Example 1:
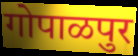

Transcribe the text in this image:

गोपाळपुर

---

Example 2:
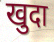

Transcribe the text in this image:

खुदा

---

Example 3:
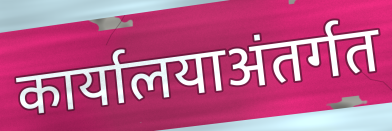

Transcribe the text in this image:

कार्यालयाअंतर्गत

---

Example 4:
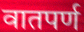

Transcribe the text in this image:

वातपर्ण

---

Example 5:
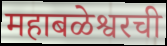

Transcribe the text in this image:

महाबळेश्वरची